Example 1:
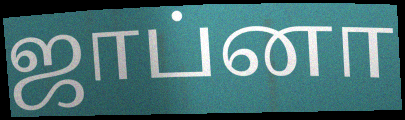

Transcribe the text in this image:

ஜாப்னா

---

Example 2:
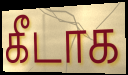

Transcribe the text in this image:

கீடாக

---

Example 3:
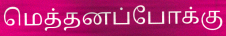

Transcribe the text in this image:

மெத்தனப்போக்கு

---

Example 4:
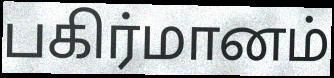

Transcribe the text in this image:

பகிர்மானம்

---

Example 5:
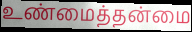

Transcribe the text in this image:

உண்மைத்தன்மை